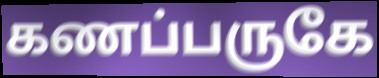
கணப்பருகே